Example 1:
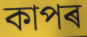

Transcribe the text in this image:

কাপৰ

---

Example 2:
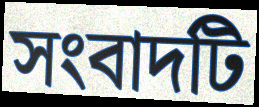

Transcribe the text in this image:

সংবাদটি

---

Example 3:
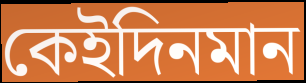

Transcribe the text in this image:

কেইদিনমান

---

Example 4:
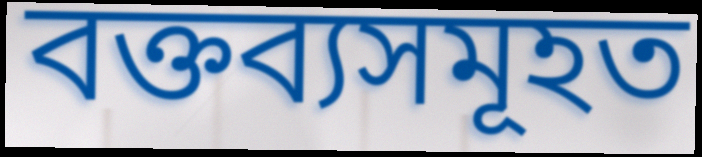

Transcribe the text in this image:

বক্তব্যসমূহত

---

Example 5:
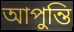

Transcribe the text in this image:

আপুন্তি